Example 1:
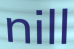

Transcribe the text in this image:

nill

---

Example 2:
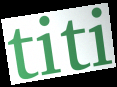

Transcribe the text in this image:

titi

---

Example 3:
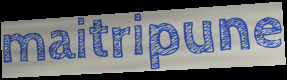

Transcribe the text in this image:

maitripune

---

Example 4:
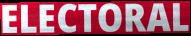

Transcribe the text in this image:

ELECTORAL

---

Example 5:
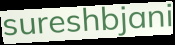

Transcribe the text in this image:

sureshbjani